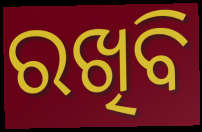
ରଖିବି